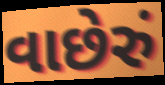
વાછેરું